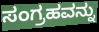
ಸಂಗ್ರಹವನ್ನು